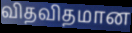
விதவிதமான